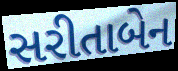
સરીતાબેન